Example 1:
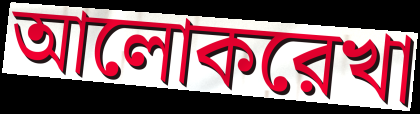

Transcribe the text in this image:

আলোকরেখা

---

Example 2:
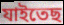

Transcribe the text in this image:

যাইতেছ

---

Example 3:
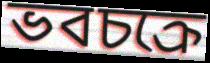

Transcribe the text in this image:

ভবচক্রে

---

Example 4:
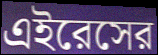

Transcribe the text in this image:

এইরেসের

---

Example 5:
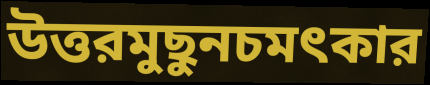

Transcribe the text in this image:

উত্তরমুছুনচমৎকার